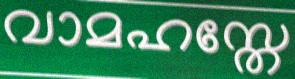
വാമഹസ്തേ